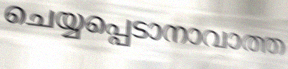
ചെയ്യപ്പെടാനാവാത്ത